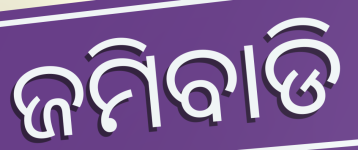
ଜମିବାଡି